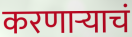
करणाऱ्याचं